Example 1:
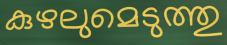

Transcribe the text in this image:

കുഴലുമെടുത്തു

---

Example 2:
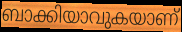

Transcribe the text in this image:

ബാക്കിയാവുകയാണ്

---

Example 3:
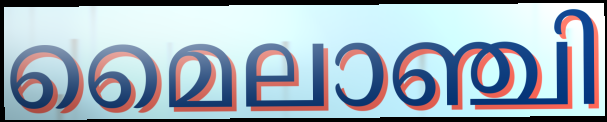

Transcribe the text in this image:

മൈലാഞ്ചി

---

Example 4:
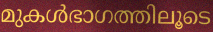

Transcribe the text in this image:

മുകൾഭാഗത്തിലൂടെ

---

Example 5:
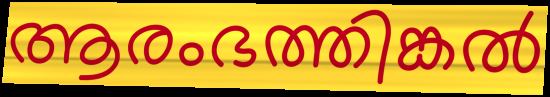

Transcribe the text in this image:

ആരംഭത്തിങ്കൽ